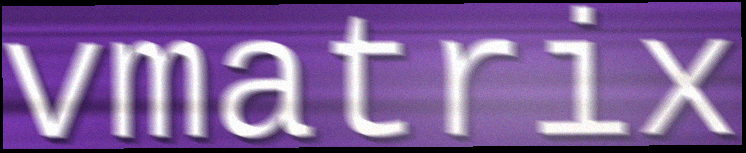
vmatrix